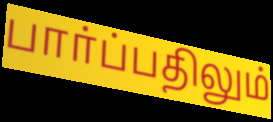
பார்ப்பதிலும்